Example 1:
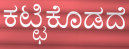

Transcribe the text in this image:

ಕಟ್ಟಿಕೊಡದೆ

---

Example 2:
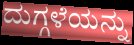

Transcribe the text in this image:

ದುಗ್ಗಳೆಯನ್ನು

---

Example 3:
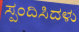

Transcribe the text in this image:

ಸ್ಪಂದಿಸಿದಳು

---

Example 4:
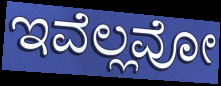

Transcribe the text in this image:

ಇವೆಲ್ಲವೋ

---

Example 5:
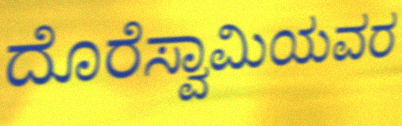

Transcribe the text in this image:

ದೊರೆಸ್ವಾಮಿಯವರ